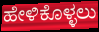
ಹೇಳಿಕೊಳ್ಳಲು